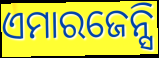
ଏମାରଜେନ୍ସି